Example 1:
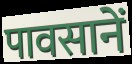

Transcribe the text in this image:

पावसानें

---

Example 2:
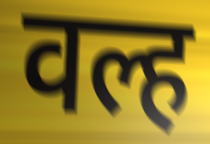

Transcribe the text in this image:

वल्ह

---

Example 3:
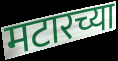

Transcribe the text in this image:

मटारच्या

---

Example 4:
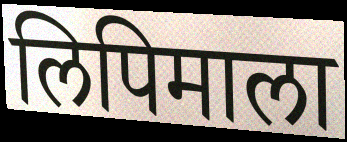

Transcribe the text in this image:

लिपिमाला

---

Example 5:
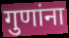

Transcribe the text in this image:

गुणांना